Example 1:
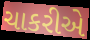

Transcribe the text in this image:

ચાકરીએ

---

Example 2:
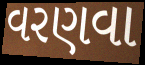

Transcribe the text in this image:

વરણવા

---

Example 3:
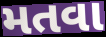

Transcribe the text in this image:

મતવા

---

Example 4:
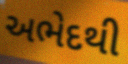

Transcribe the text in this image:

અભેદથી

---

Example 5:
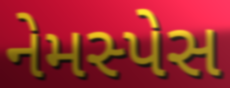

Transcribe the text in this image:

નેમસ્પેસ